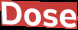
Dose